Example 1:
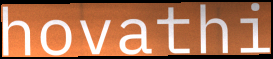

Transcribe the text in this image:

hovathi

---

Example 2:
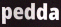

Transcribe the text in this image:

pedda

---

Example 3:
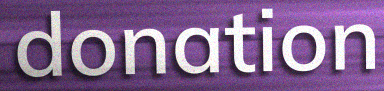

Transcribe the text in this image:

donation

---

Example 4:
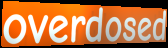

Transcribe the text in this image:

overdosed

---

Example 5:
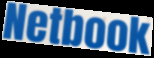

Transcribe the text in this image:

Netbook